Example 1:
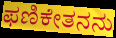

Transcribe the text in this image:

ಫಣಿಕೇತನನು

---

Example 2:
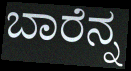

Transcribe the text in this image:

ಬಾರೆನ್ನ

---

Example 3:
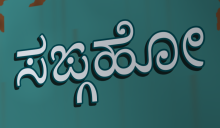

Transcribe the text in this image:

ಸಙ್ಗಹೋ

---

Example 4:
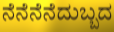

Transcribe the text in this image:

ನೆನೆನೆನೆದುಬ್ಬದ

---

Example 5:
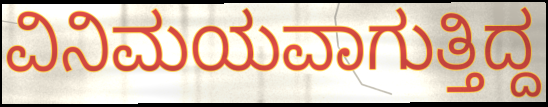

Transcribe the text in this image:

ವಿನಿಮಯವಾಗುತ್ತಿದ್ದ